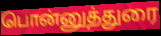
பொன்னுத்துரை